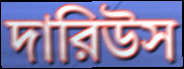
দারিউস